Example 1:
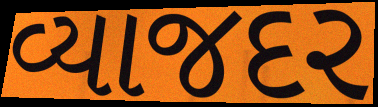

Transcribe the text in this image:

વ્યાજદર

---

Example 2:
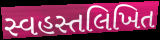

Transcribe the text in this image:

સ્વહસ્તલિખિત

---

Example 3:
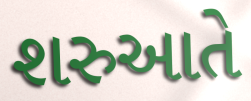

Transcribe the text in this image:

શરુઆતે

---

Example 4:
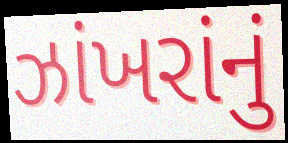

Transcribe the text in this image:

ઝાંખરાંનું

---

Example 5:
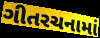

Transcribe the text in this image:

ગીતરચનામાં